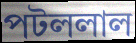
পটললাল